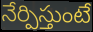
నేర్పిస్తుంటే